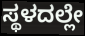
ಸ್ಥಳದಲ್ಲೇ